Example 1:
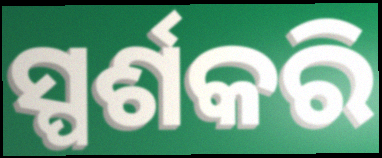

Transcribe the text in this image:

ସ୍ପର୍ଶକରି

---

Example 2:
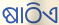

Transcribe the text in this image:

ଷାଠିଏ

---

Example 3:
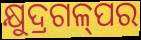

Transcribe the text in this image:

କ୍ଷୁଦ୍ରଗଳ୍‌ପର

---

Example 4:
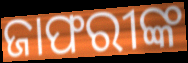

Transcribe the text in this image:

ଜାଫରୀଙ୍କ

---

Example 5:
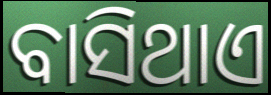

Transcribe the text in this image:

ବାସିଥାଏ